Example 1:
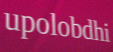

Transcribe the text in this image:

upolobdhi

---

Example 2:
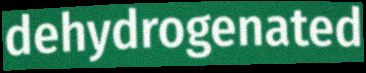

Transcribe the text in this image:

dehydrogenated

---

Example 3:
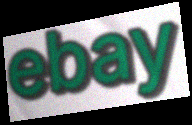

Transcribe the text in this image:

ebay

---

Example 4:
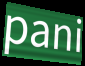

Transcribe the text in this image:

pani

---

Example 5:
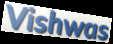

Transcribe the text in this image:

Vishwas